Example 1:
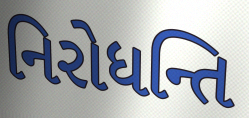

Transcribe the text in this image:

નિરોધન્તિ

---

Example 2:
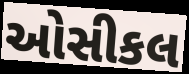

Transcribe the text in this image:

ઓસીકલ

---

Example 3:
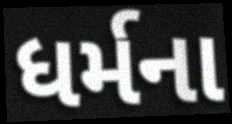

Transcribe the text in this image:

ધર્મના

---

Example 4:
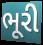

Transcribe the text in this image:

ભૂરી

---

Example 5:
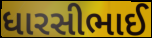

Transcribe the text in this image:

ધારસીભાઈ